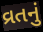
વ્રતનું